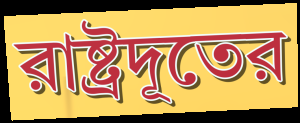
রাষ্ট্রদূতের